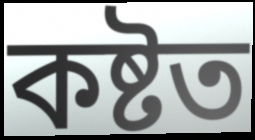
কষ্টত